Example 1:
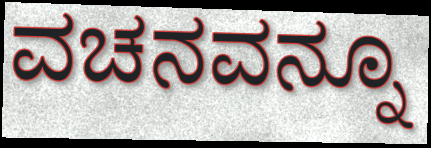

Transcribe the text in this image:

ವಚನವನ್ನೂ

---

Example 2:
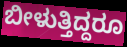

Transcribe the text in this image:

ಬೀಳುತ್ತಿದ್ದರೂ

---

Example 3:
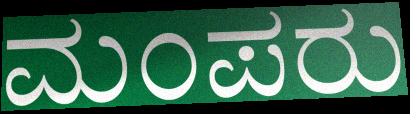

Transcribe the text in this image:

ಮಂಪರು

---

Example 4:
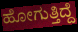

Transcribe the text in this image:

ಹೋಗುತ್ತಿದ್ದೆ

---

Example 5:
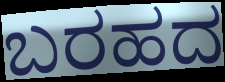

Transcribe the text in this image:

ಬರಹದ